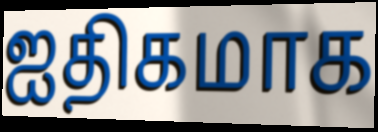
ஐதிகமாக